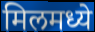
मिलमध्ये